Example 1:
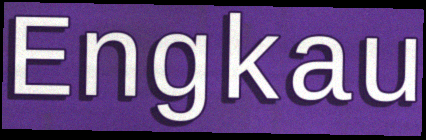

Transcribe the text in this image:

Engkau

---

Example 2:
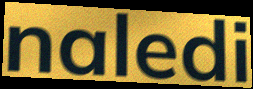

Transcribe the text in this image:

naledi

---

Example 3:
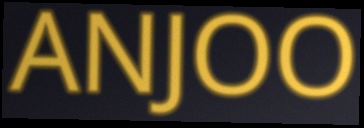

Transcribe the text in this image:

ANJOO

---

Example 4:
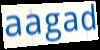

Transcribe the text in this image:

aagad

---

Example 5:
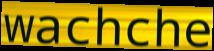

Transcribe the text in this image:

wachche